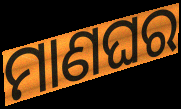
ମାଣଘର